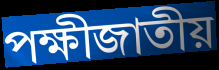
পক্ষীজাতীয়